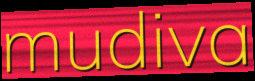
mudiva